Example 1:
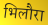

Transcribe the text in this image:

भिलौरा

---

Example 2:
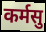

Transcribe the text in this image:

कर्मसु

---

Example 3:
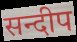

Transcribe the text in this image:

सन्दीप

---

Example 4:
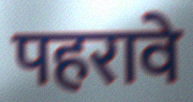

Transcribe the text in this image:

पहरावे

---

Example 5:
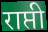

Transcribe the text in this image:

राप्ती